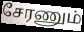
சேரணும்